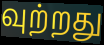
வுற்றது